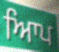
ਆਿਪ